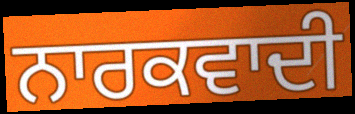
ਨਾਰਕਵਾਦੀ